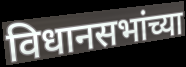
विधानसभांच्या